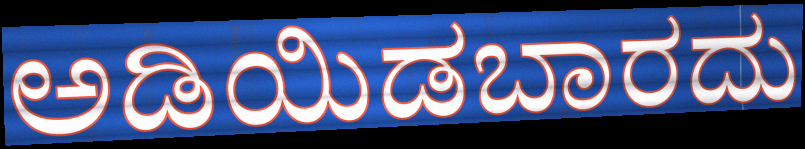
ಅಡಿಯಿಡಬಾರದು